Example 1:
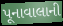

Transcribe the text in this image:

પૂનાવાલાની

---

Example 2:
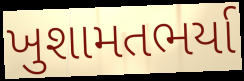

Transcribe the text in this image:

ખુશામતભર્યા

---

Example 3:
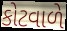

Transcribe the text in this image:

કોટવાળે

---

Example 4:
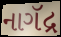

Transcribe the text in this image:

નાગૅદ્ર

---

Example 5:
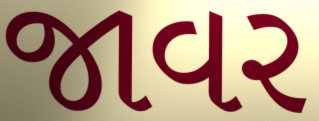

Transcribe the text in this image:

જાવર